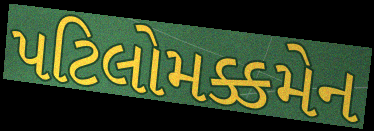
પટિલોમક્કમેન